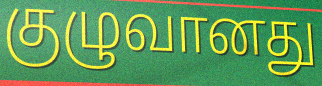
குழுவானது